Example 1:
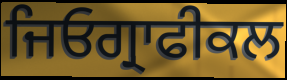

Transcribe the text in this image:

ਜਿਓਗ੍ਰਾਫੀਕਲ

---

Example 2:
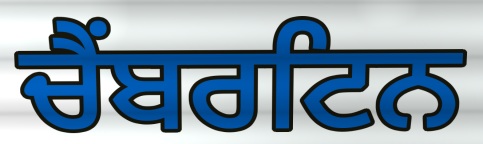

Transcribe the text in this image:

ਚੈਂਬਰਟਿਨ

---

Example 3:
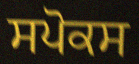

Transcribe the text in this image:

ਸਪੋਕਸ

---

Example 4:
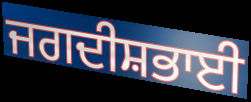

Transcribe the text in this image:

ਜਗਦੀਸ਼ਭਾਈ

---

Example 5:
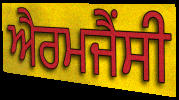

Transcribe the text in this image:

ਐਰਮਜੈਂਸੀ